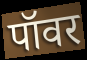
पॉवर